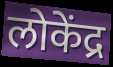
लोकेंद्र